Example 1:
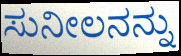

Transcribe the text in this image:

ಸುನೀಲನನ್ನು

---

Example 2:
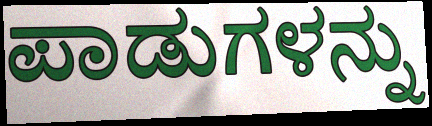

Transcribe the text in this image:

ಪಾಡುಗಳನ್ನು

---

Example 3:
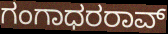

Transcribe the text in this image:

ಗಂಗಾಧರರಾವ್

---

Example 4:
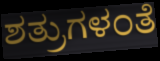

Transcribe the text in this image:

ಶತ್ರುಗಳಂತೆ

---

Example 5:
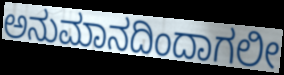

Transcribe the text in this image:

ಅನುಮಾನದಿಂದಾಗಲೀ